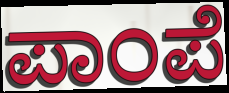
ಪಾಂಪೆ